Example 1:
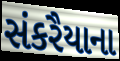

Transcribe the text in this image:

સંકરૈયાના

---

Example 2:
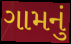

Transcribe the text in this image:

ગામનું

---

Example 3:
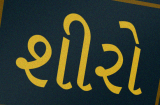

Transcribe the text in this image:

શીરો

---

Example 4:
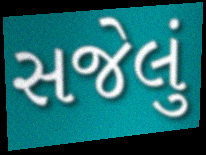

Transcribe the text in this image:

સજેલું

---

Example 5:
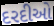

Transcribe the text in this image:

દરદીઓ